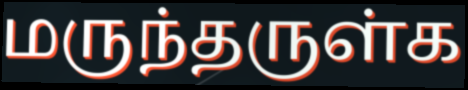
மருந்தருள்க